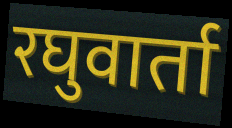
रघुवार्ता